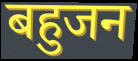
बहुजन